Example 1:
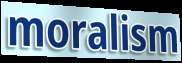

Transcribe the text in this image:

moralism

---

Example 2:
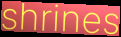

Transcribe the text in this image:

shrines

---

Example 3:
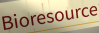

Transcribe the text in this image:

Bioresource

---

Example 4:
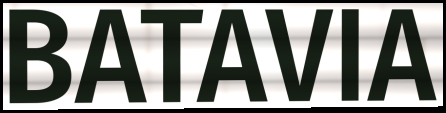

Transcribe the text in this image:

BATAVIA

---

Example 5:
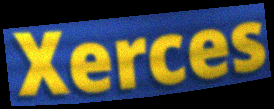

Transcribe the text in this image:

Xerces